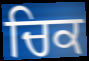
ਚਿਕ